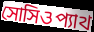
সোসিওপ্যাথ